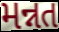
મન્નત